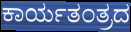
ಕಾರ್ಯತಂತ್ರದ